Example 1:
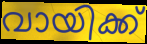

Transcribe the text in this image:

വായിക്ക്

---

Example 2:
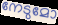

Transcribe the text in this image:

നേടുമോ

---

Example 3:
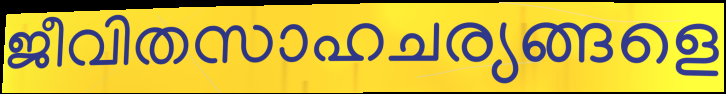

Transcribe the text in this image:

ജീവിതസാഹചര്യങ്ങളെ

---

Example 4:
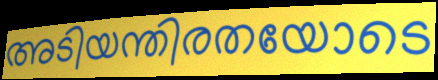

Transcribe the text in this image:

അടിയന്തിരതയോടെ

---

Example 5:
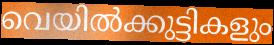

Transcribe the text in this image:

വെയിൽക്കുട്ടികളും